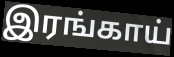
இரங்காய்